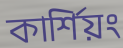
কার্শিয়ং